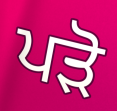
ਪੜੋ